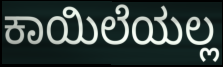
ಕಾಯಿಲೆಯಲ್ಲ